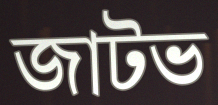
জাটভ